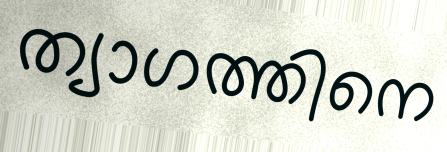
ത്യാഗത്തിനെ